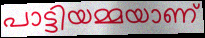
പാട്ടിയമ്മയാണ്